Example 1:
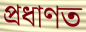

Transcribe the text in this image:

প্রধাণত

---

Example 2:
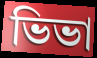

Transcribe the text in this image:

ভিভা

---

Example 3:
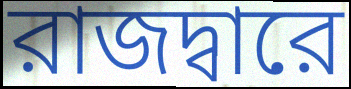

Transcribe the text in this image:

রাজদ্বারে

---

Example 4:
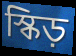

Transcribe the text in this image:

স্কিড়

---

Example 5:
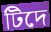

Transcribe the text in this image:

টিদে